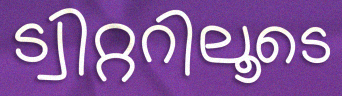
ട്വിറ്ററിലൂടെ